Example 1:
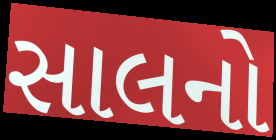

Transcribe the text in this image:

સાલનો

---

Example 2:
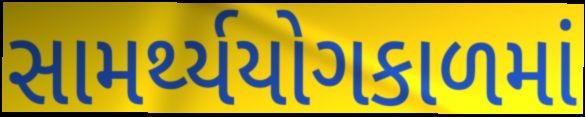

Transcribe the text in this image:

સામર્થ્યયોગકાળમાં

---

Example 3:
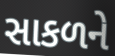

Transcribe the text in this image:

સાકળને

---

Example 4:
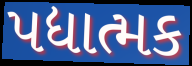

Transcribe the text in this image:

પદ્યાત્મક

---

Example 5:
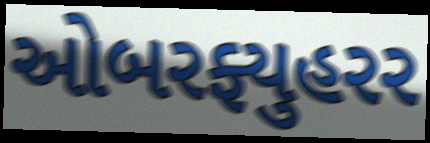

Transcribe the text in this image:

ઓબરફ્યુહરર